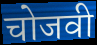
चोजवी